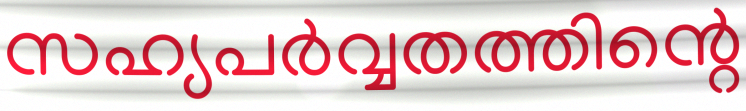
സഹ്യപർവ്വതത്തിന്റെ